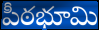
పీఠభూమి